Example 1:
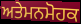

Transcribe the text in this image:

ਅਤੇਮਨਮੋਹਕ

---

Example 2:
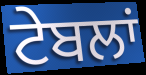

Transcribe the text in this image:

ਟੇਬਲਾਂ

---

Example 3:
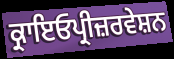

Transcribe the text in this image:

ਕ੍ਰਾਇਓਪ੍ਰੀਜ਼ਰਵੇਸ਼ਨ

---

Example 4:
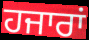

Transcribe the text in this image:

ਹਜਾਰਾਂ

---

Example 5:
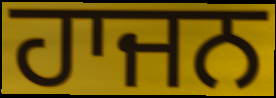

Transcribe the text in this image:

ਹਾਜਨ